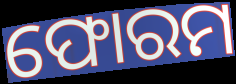
ଫୋରମ